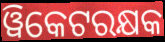
ୱିକେଟରକ୍ଷକ